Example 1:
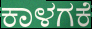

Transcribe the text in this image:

ಕಾಳಗಕೆ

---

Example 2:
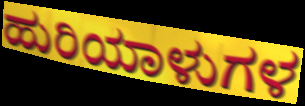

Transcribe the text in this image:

ಹುರಿಯಾಳುಗಳ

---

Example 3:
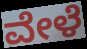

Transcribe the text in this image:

ವೇಳೆ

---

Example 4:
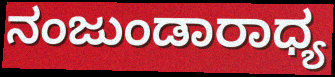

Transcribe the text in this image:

ನಂಜುಂಡಾರಾಧ್ಯ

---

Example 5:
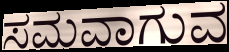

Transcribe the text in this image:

ಸಮವಾಗುವ